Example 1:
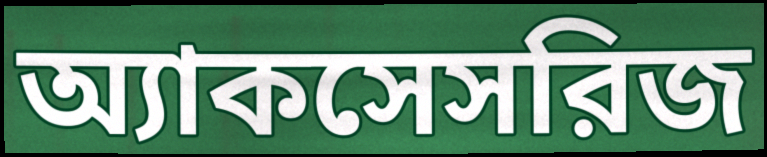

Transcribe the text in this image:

অ্যাকসেসরিজ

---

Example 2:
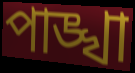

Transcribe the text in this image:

পাঙ্খা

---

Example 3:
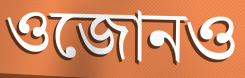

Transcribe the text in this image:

ওজোনও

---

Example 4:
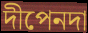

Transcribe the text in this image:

দীপেনদা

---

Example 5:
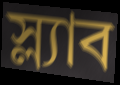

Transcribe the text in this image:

স্ল্যাব